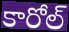
కారోల్